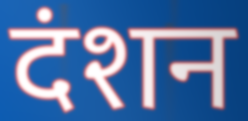
दंशन